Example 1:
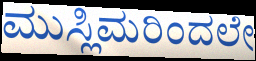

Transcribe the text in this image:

ಮುಸ್ಲಿಮರಿಂದಲೇ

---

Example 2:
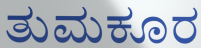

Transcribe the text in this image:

ತುಮಕೂರ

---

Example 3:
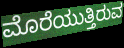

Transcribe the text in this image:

ಮೊರೆಯುತ್ತಿರುವ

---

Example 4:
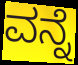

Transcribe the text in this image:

ವನ್ನೆ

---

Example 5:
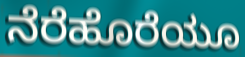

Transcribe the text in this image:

ನೆರೆಹೊರೆಯೂ